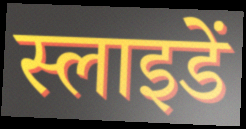
स्लाइडें